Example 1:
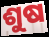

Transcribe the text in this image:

ଶୁଷ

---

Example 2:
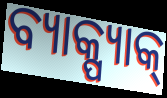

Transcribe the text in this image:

ବ୍ୟାକ୍ପ୍ୟାକ୍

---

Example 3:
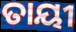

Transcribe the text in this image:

ତାୟୀ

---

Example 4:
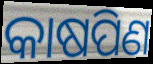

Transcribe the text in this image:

କାଷପିଣ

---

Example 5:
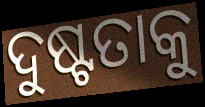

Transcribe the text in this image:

ଦୁଷ୍ଟତାକୁ